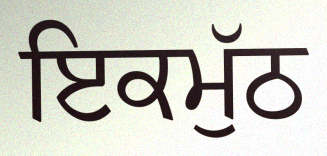
ਇਕਮੁੱਠ